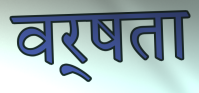
वर्षता